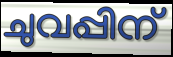
ചുവപ്പിന്